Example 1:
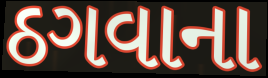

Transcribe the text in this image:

ઠગવાના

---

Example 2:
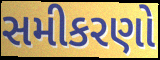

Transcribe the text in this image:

સમીકરણો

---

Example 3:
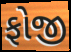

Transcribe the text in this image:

ફોજી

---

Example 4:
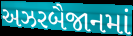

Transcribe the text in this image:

અઝરબૈજાનમાં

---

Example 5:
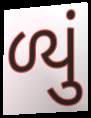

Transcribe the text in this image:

ળ્યું